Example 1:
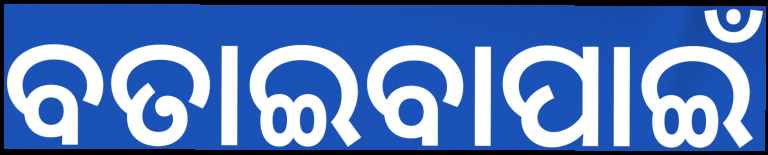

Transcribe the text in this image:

ବତାଇବାପାଇଁ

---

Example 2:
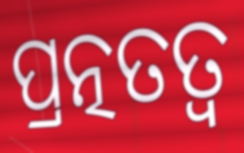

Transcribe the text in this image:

ପ୍ରତ୍ନତତ୍ୱ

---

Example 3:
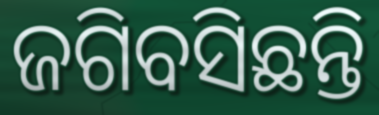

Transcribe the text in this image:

ଜଗିବସିଛନ୍ତି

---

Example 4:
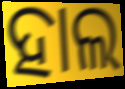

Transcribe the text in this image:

ହାଲ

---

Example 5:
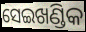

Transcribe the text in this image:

ସେଇଖଣ୍ଡିକ